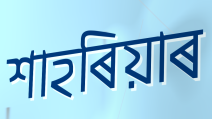
শাহৰিয়াৰ